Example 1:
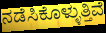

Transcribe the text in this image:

ನಡೆಸಿಕೊಳ್ಳುತ್ತಿವೆ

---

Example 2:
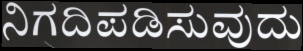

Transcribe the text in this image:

ನಿಗದಿಪಡಿಸುವುದು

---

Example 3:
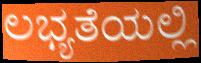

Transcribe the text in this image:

ಲಭ್ಯತೆಯಲ್ಲಿ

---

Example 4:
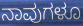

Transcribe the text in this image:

ನಾವುಗಳೂ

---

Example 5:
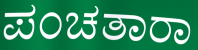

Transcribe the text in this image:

ಪಂಚತಾರಾ